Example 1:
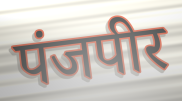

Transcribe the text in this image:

पंजपीर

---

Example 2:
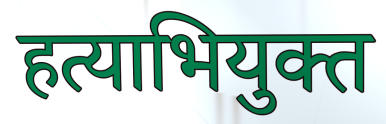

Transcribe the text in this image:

हत्याभियुक्त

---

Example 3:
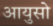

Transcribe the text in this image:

आयुसो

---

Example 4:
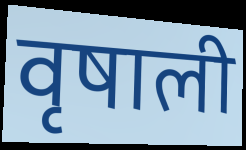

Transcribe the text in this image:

वृषाली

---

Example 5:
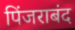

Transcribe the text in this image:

पिंजराबंद